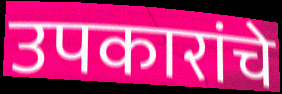
उपकारांचे